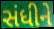
સંધીને